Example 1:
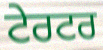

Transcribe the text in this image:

ਟੇਰਟਰ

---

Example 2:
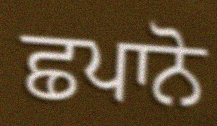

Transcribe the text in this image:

ਛਪਾਨੋ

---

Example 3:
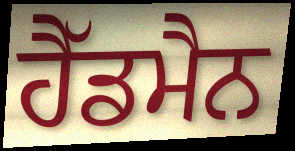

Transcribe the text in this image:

ਹੈੱਡਮੈਨ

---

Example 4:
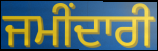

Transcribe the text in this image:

ਜਮੀਂਦਾਰੀ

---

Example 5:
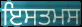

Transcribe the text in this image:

ਇਸਤਮਸ